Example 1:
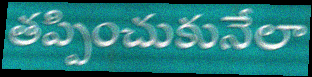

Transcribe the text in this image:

తప్పించుకునేలా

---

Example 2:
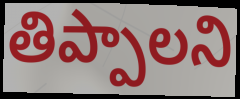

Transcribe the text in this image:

తిప్పాలని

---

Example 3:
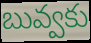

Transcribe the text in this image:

బువ్వకు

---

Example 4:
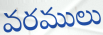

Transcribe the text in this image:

వరములు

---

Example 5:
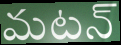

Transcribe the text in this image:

మటన్